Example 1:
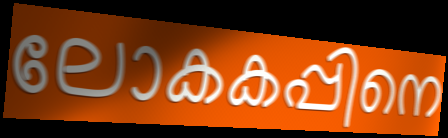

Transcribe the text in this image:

ലോകകപ്പിനെ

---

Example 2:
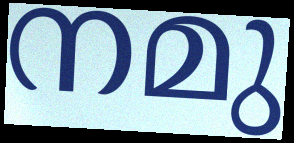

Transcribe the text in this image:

നമു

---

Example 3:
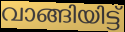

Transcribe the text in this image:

വാങ്ങിയിട്ട്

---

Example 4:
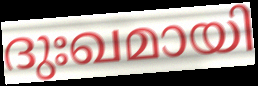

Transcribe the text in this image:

ദുഃഖമായി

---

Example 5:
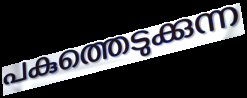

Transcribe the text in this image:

പകുത്തെടുക്കുന്ന